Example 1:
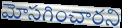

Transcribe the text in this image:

మోసగించారని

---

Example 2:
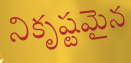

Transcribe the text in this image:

నికృష్టమైన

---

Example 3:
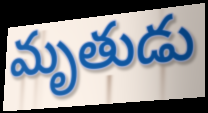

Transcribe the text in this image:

మృతుడు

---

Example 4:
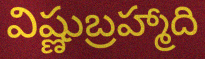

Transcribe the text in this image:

విష్ణుబ్రహ్మాది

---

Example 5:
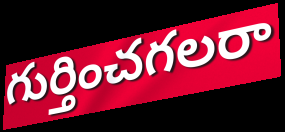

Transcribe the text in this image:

గుర్తించగలరా